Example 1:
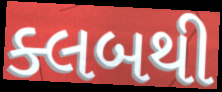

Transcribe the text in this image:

ક્લબથી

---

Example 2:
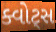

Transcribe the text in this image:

ક્વોટ્સ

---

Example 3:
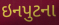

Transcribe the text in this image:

ઇનપુટના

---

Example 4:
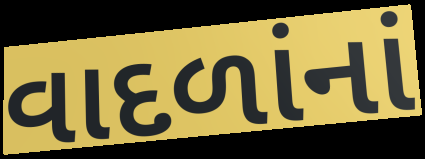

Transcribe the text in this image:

વાદળાંનાં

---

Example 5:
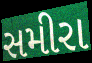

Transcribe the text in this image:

સમીરા